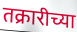
तक्रारीच्या